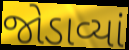
જોડાવ્યાં